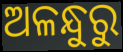
ଅଳନ୍ଧୁରୁ